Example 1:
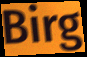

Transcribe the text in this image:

Birg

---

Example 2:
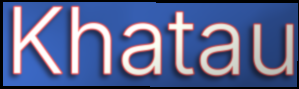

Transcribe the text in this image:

Khatau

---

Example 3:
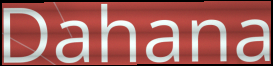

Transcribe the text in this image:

Dahana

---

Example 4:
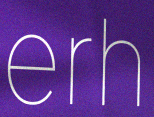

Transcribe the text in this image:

erh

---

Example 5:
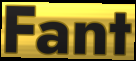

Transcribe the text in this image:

Fant